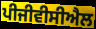
ਪੀਜੀਵੀਸੀਐਲ